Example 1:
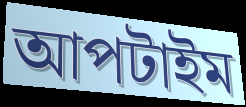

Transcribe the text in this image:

আপটাইম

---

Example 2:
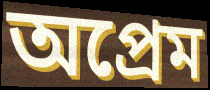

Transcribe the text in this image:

অপ্রেম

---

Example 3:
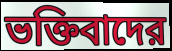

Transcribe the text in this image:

ভক্তিবাদের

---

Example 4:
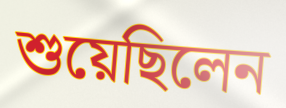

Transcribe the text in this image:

শুয়েছিলেন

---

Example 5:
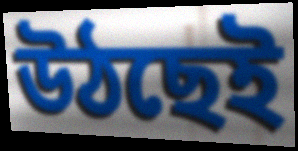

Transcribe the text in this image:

উঠছেই